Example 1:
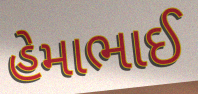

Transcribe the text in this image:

હેમાભાઈ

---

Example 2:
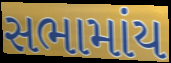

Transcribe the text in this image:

સભામાંય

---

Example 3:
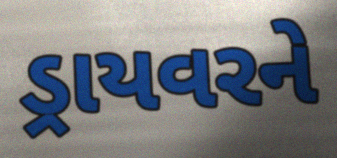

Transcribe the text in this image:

ડ્રાયવરને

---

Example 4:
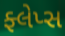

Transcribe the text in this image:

ફ્લેપ્સ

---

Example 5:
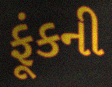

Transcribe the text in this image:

ફૂંકની